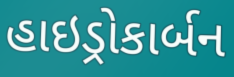
હાઇડ્રોકાર્બન